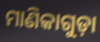
ମାଣିକାଗୁଡ଼ା